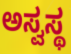
ಅಸ್ವಸ್ಥ